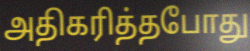
அதிகரித்தபோது